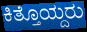
ಕಿತ್ತೊಯ್ದರು